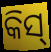
କିସ୍